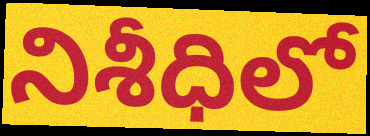
నిశీధిలో